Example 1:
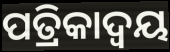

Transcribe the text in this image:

ପତ୍ରିକାଦ୍ୱୟ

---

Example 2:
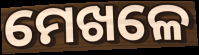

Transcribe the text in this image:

ମେଖଳେ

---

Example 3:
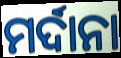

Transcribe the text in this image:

ମର୍ଦାନା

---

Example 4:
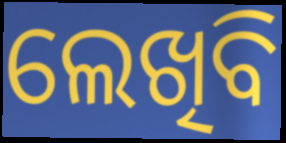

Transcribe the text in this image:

ଲେଖିବି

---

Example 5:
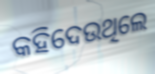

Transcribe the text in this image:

କହିଦେଉଥିଲେ